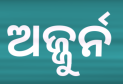
ଅଜ୍ଜୁର୍ନ